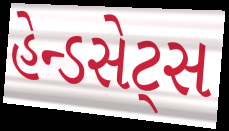
હેન્ડસેટ્સ